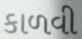
કાળવી